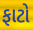
ફાટો